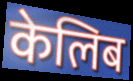
केलिब